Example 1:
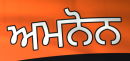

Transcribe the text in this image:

ਅਮਨੋਨ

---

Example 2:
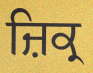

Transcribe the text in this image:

ਜ਼ਿਕ੍ਰ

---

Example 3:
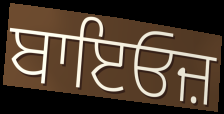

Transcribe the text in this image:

ਬਾਇਓਜ਼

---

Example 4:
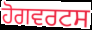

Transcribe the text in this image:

ਹੋਗਵਰਟਸ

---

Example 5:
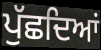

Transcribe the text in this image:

ਪੁੱਛਦਿਆਂ